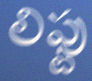
లిఫ్టు